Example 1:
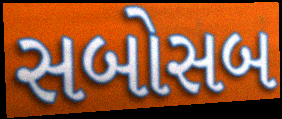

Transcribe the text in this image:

સબોસબ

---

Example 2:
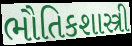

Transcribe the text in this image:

ભૌતિકશાસ્ત્રી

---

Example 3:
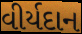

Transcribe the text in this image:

વીર્યદાન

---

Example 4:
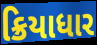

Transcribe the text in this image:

ક્રિયાધાર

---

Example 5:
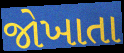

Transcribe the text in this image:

જોખાતા